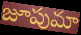
జూపుమా